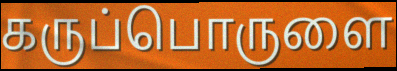
கருப்பொருளை